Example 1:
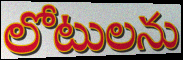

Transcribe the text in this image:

లోటులను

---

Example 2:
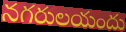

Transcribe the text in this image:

నగరులయందు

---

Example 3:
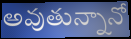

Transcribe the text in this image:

అవుతున్నానో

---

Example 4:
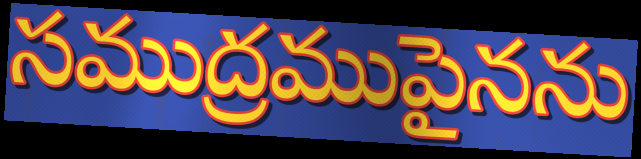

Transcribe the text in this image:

సముద్రముపైనను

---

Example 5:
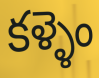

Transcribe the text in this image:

కళ్ళెం